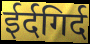
ईर्दगिर्द